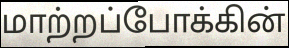
மாற்றப்போக்கின்